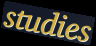
studies